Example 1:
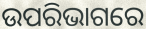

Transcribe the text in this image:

ଉପରିଭାଗରେ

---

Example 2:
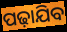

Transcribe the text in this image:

ପଢ଼ାଯିବ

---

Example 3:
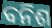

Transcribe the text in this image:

ବନିଶ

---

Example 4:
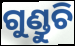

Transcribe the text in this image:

ଗୁଣ୍ଡୁଚି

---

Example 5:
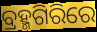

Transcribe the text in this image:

ବ୍ରହ୍ମଗିରିରେ